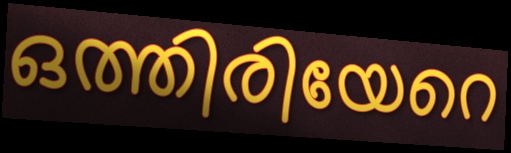
ഒത്തിരിയേറെ